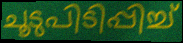
ചൂടുപിടിപ്പിച്ച്